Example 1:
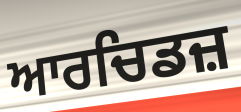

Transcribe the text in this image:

ਆਰਚਿਡਜ਼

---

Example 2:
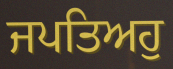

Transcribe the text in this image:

ਜਪਤਿਅਹੁ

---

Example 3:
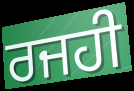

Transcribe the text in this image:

ਰਜਹੀ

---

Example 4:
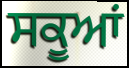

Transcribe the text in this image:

ਸਕੂਆਂ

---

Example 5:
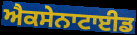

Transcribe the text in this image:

ਐਕਸੇਨਾਟਾਈਡ